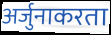
अर्जुनाकरता